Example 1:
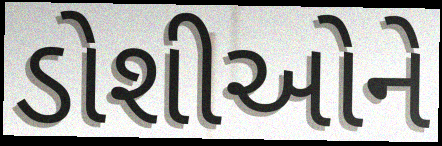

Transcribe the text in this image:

ડોશીઓને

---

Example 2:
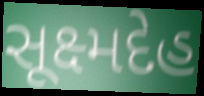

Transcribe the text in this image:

સૂક્ષ્મદેહ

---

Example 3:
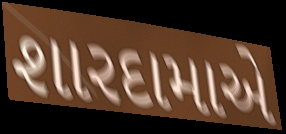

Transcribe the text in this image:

શારદામાએ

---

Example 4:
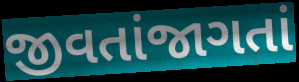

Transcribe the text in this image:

જીવતાંજાગતાં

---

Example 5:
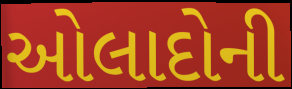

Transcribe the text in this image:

ઓલાદોની